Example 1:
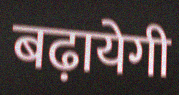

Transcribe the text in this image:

बढ़ायेगी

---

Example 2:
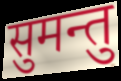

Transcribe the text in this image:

सुमन्तु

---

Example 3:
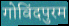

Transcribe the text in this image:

गोविंदपुरम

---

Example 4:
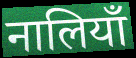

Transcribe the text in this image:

नालियाँ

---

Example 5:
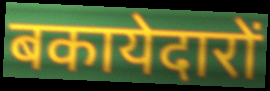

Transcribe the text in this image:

बकायेदारों